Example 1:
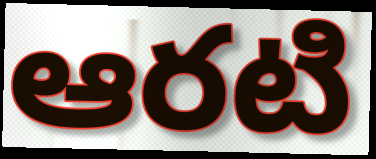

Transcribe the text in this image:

ఆరటి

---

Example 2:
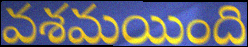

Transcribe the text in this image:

వశమయింది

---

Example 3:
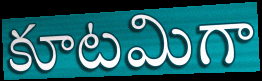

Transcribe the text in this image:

కూటమిగా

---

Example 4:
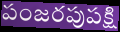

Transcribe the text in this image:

పంజరపుపక్షి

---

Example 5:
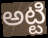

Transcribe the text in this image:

అట్టి